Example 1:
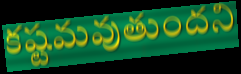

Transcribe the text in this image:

కష్టమవుతుందని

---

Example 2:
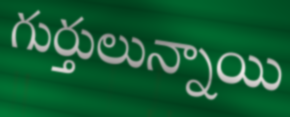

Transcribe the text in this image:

గుర్తులున్నాయి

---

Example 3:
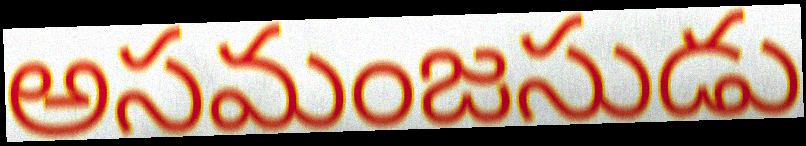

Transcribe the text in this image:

అసమంజసుడు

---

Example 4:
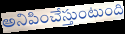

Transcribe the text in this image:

అనిపించేస్తుంటుంది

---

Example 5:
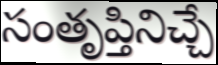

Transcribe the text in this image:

సంతృప్తినిచ్చే